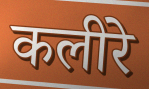
कलीरे